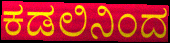
ಕಡಲಿನಿಂದ